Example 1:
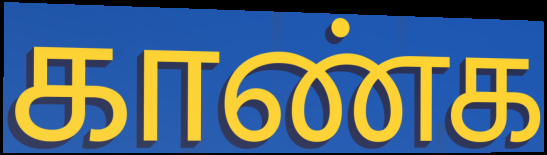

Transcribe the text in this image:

காண்க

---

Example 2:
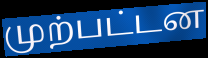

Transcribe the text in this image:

முற்பட்டன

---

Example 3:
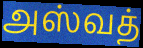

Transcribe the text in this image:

அஸ்வத்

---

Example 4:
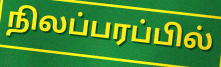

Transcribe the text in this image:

நிலப்பரப்பில்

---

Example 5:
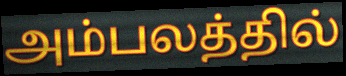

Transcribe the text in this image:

அம்பலத்தில்